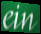
ein